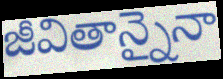
జీవితాన్నైనా